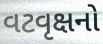
વટવૃક્ષનો